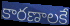
కారణాలకే